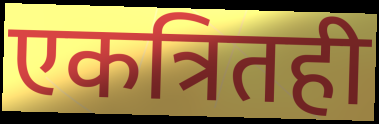
एकत्रितही